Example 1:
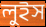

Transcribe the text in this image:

লুইস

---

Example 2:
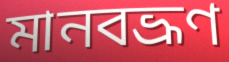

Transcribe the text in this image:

মানবভ্রূণ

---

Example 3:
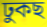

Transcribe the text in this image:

ঢুকছ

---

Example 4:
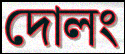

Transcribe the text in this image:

দোলং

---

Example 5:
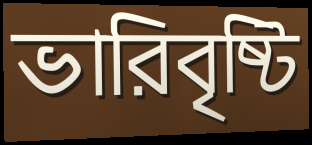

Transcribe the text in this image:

ভারিবৃষ্টি